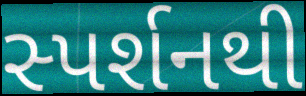
સ્પર્શનથી